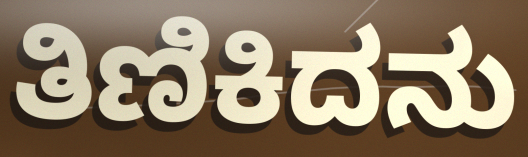
ತಿಣಿಕಿದನು